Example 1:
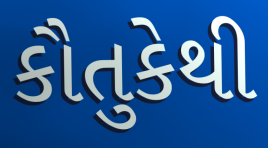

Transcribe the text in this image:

કૌતુકેથી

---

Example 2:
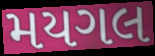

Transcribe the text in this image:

મયગલ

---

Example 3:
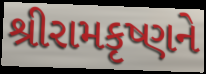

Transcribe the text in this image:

શ્રીરામકૃષ્ણને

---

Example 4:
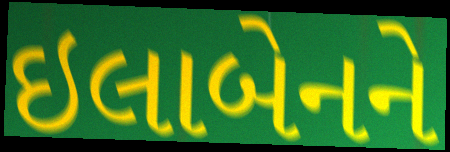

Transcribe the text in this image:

ઇલાબેનને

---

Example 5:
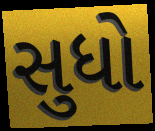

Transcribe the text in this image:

સુધો